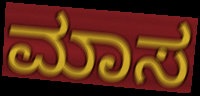
ಮಾಸ